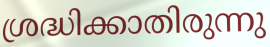
ശ്രദ്ധിക്കാതിരുന്നു